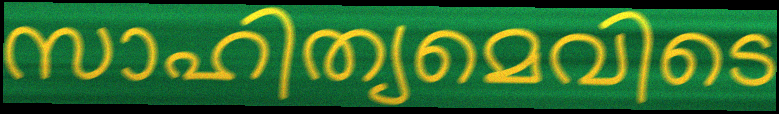
സാഹിത്യമെവിടെ